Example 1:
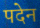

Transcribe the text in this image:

पदेन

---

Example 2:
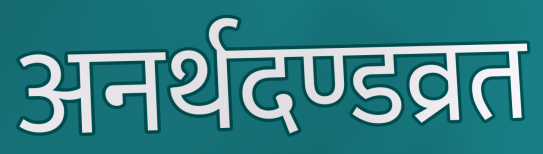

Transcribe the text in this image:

अनर्थदण्डव्रत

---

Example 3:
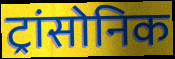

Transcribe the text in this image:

ट्रांसोनिक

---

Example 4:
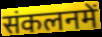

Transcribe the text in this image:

संकलनमें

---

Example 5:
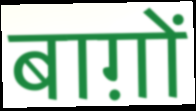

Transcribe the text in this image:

बाग़ों